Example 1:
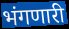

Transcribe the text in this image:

भंगणारी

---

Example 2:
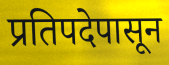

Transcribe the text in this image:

प्रतिपदेपासून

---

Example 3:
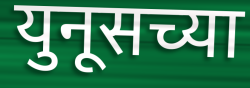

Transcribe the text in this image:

युनूसच्या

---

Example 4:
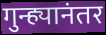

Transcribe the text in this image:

गुन्ह्यानंतर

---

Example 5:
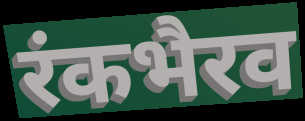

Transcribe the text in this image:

रंकभैरव